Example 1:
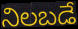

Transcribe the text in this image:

నిలబడే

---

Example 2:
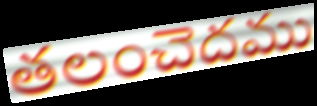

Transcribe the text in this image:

తలంచెదము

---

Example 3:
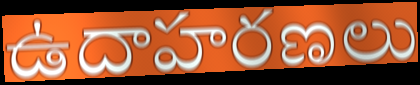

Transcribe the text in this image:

ఉదాహరణలు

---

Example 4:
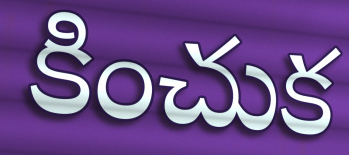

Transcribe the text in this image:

కించుక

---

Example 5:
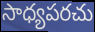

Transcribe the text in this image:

సాధ్యపరచు